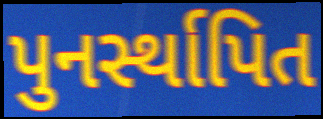
પુનર્સ્થાપિત